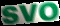
SVO